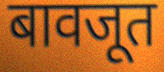
बावजूत